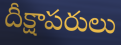
దీక్షాపరులు